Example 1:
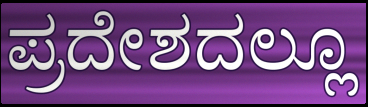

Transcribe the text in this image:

ಪ್ರದೇಶದಲ್ಲೂ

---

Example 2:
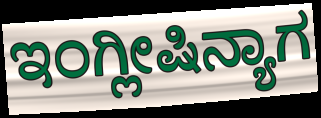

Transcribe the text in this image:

ಇಂಗ್ಲೀಷಿನ್ಯಾಗ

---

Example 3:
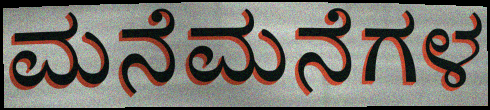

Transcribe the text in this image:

ಮನೆಮನೆಗಳ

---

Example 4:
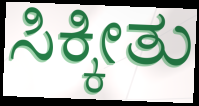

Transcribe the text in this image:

ಸಿಕ್ಕೀತು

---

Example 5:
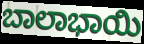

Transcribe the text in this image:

ಬಾಲಾಭಾಯಿ